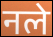
नले